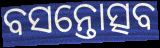
ବସନ୍ତୋତ୍ସବ